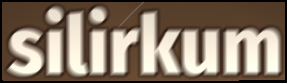
silirkum